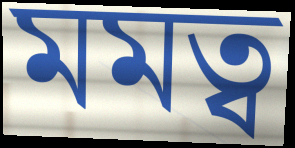
মমত্ব